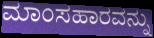
ಮಾಂಸಹಾರವನ್ನು